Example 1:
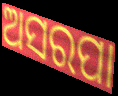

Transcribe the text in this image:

ଅସରପା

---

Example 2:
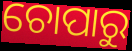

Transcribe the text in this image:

ଚୋପାରୁ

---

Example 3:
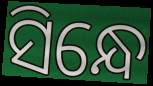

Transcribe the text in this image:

ସିନ୍ଧେ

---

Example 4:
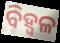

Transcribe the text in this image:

ବିହ୍ଵଳ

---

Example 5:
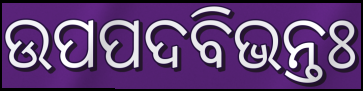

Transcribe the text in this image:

ଉପପଦବିଭନ୍ତଃ